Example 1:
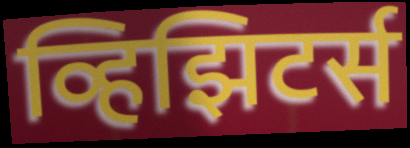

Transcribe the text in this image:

व्हिझिटर्स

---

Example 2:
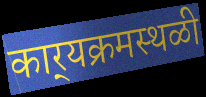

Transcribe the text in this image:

कार्यक्रमस्थळी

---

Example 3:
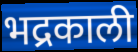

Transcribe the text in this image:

भद्रकाली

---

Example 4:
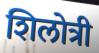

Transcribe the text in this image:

शिलोत्री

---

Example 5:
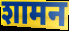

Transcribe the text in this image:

शामन